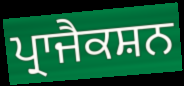
ਪ੍ਰਾਜੈਕਸ਼ਨ